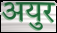
अयुर